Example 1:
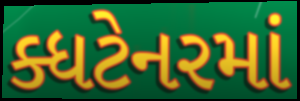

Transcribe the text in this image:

ક્ધટેનરમાં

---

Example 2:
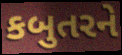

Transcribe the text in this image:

કબુતરને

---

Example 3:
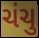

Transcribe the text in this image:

ચંચુ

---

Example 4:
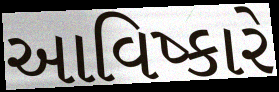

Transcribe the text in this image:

આવિષ્કારે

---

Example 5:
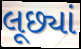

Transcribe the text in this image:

લૂછ્યાં